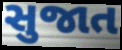
સુજાત